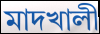
মাদখালী